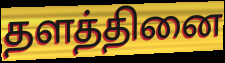
தளத்தினை